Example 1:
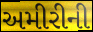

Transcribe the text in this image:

અમીરીની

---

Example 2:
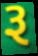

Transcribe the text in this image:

રૂ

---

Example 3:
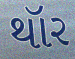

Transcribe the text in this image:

થૉર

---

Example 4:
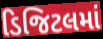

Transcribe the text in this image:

ડિજિટલમાં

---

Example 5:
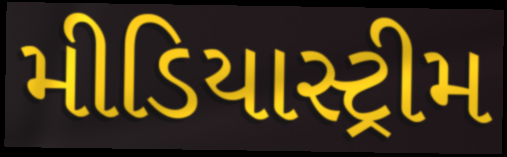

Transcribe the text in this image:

મીડિયાસ્ટ્રીમ